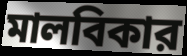
মালবিকার